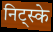
निट्स्के